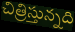
చిత్రిస్తున్నది